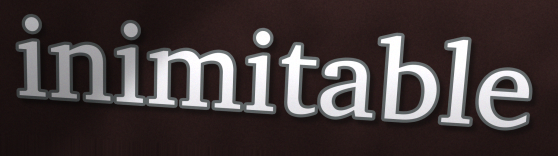
inimitable